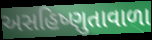
અસહિષ્ણુતાવાળા